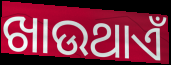
ଖାଉଥାଏଁ